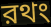
রথং